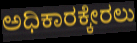
ಅಧಿಕಾರಕ್ಕೇರಲು